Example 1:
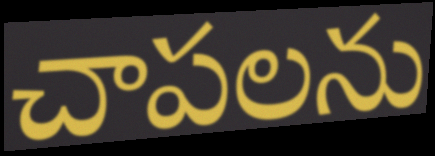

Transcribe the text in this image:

చాపలను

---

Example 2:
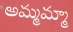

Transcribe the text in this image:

అమ్మమ్మా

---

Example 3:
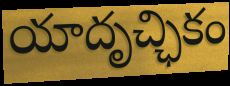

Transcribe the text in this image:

యాదృచ్ఛికం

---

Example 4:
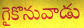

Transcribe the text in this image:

గైకొనువాడు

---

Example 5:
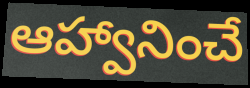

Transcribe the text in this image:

ఆహ్వానించే